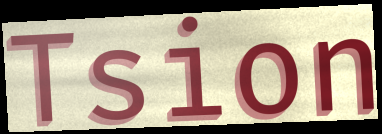
Tsion